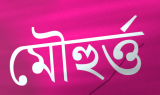
মৌহুৰ্ত্ত